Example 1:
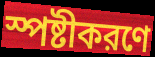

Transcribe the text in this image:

স্পষ্টীকরণে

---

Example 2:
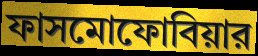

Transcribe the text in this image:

ফাসমোফোবিয়ার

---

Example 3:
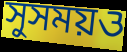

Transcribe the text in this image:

সুসময়ও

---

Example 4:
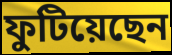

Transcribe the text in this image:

ফুটিয়েছেন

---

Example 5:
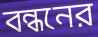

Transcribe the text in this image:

বন্ধনের